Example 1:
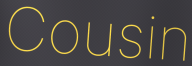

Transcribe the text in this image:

Cousin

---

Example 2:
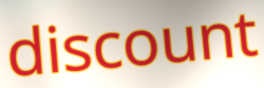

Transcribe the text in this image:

discount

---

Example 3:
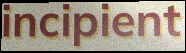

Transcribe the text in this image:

incipient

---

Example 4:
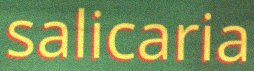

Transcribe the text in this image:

salicaria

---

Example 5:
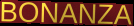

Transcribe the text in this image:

BONANZA